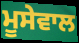
ਮੂਸੇਵਾਲ